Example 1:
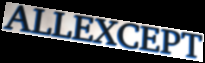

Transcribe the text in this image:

ALLEXCEPT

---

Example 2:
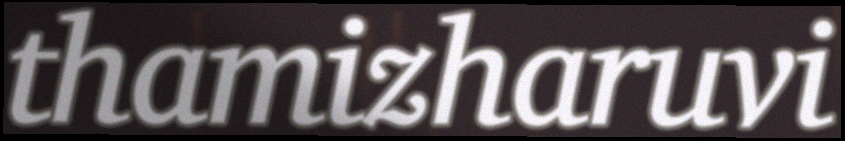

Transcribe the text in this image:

thamizharuvi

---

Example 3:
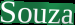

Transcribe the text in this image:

Souza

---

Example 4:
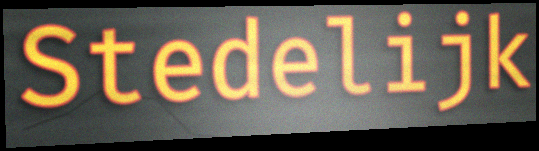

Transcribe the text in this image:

Stedelijk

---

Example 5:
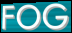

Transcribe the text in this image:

FOG